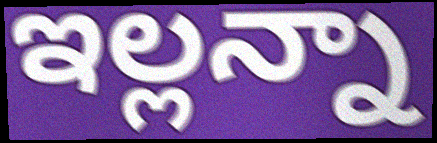
ఇల్లన్నా